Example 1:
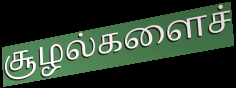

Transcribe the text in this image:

சூழல்களைச்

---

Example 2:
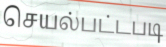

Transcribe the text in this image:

செயல்பட்டபடி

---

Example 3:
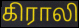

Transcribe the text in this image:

கிராலி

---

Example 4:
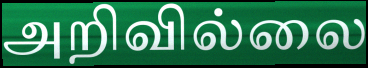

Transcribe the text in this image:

அறிவில்லை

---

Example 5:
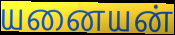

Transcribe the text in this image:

யனையன்